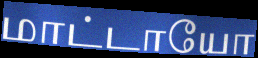
மாட்டாயோ